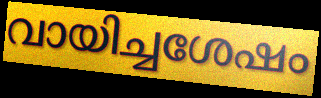
വായിച്ചശേഷം